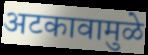
अटकावामुळे